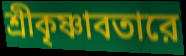
শ্রীকৃষ্ণাবতারে